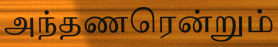
அந்தணரென்றும்